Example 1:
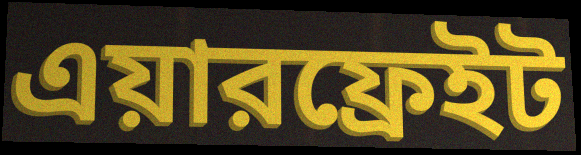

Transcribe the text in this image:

এয়ারফ্রেইট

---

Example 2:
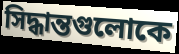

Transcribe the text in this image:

সিদ্ধান্তগুলোকে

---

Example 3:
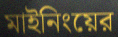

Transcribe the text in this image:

মাইনিংয়ের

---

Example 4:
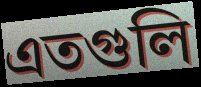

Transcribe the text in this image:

এতগুলি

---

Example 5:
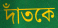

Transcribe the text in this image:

দাঁতকে